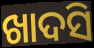
ଖାଦସି